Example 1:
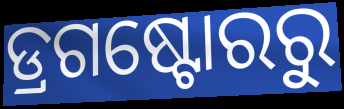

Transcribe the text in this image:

ଡ୍ରଗଷ୍ଟୋରରୁ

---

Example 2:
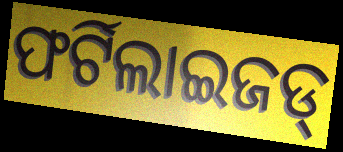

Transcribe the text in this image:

ଫର୍ଟିଲାଇଜଡ୍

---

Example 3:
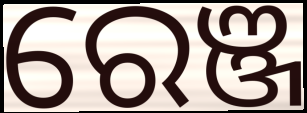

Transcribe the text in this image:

ରେଞ୍ଜ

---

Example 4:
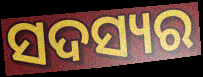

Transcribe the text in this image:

ସଦସ୍ୟର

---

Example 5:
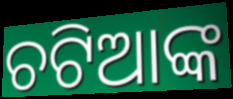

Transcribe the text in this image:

ଚଟିଆଙ୍କ